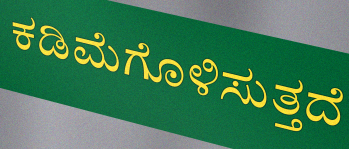
ಕಡಿಮೆಗೊಳಿಸುತ್ತದೆ